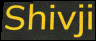
Shivji